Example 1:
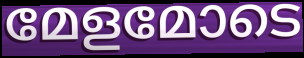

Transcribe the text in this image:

മേളമോടെ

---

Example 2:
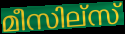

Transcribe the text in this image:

മീസില്സ്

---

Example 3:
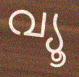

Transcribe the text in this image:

വ്യൂ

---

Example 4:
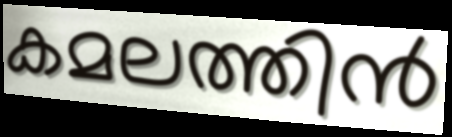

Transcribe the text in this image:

കമലത്തിൻ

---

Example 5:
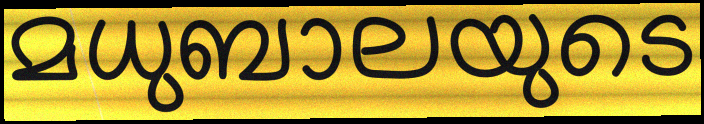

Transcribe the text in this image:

മധുബാലയുടെ